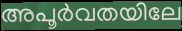
അപൂർവതയിലേ